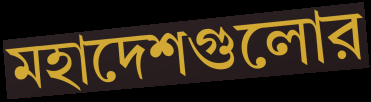
মহাদেশগুলোর